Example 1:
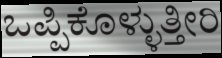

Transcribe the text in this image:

ಒಪ್ಪಿಕೊಳ್ಳುತ್ತೀರಿ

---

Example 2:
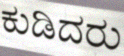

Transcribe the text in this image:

ಕುಡಿದರು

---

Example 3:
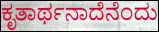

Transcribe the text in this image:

ಕೃತಾರ್ಥನಾದೆನೆಂದು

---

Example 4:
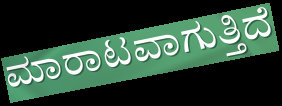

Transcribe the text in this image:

ಮಾರಾಟವಾಗುತ್ತಿದೆ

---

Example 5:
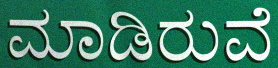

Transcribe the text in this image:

ಮಾಡಿರುವೆ